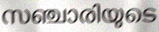
സഞ്ചാരിയുടെ